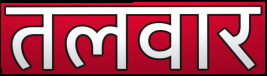
तलवार